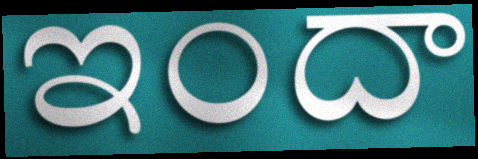
ఇందా